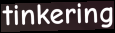
tinkering